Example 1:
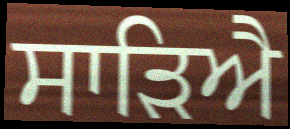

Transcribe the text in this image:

ਸਾੜਿਐ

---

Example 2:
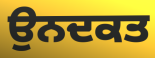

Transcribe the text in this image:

ਉਨਦਕਤ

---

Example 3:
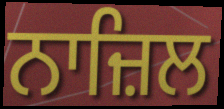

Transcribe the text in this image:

ਨਾਜ਼ਿਲ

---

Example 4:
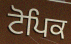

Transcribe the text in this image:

ਟੋਪਿਕ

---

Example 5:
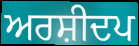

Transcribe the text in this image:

ਅਰਸ਼ੀਦਪ